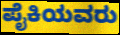
ಪೈಕಿಯವರು